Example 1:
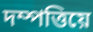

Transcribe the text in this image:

দম্পত্তিয়ে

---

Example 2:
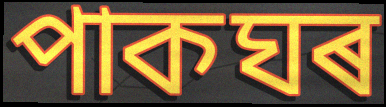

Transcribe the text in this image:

পাকঘৰ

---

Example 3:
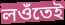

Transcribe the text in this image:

লওঁতেই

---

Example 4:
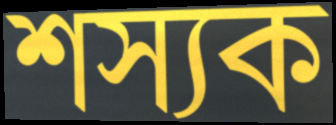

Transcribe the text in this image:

শস্যক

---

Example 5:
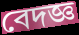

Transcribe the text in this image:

বেদজ্ঞ